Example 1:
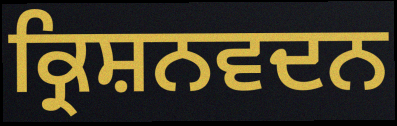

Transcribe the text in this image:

ਕ੍ਰਿਸ਼ਨਵਦਨ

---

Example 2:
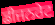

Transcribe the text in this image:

ਡੀਜਨਰੇਟ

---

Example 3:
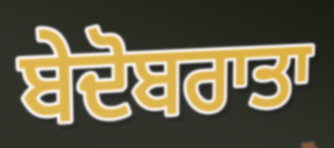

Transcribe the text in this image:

ਬੇਦੋਬਰਾਤਾ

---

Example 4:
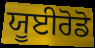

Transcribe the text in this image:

ਯੂਈਰੋਡੋ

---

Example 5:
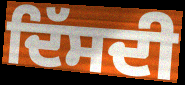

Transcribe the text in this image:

ਦਿੱਸਦੀ